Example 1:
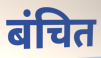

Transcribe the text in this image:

बंचित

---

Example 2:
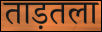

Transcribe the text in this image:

ताड़तला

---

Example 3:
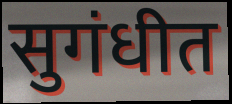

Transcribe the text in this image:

सुगंधीत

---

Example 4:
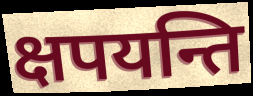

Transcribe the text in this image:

क्षपयन्ति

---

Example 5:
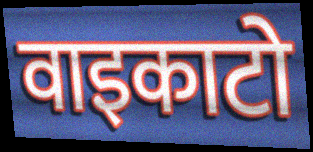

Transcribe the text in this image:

वाइकाटो